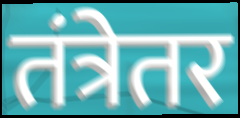
तंत्रेतर